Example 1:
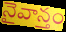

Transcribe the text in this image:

నైవాన్తం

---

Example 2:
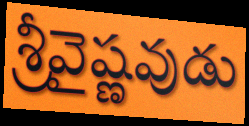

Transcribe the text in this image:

శ్రీవైష్ణవుడు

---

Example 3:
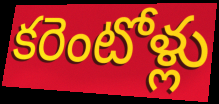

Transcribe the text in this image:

కరెంటోళ్లు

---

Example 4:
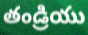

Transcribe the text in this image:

తండ్రియు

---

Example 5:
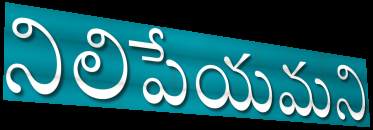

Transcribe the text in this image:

నిలిపేయమని